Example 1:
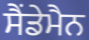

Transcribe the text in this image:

ਸੈਂਡੇਮੈਨ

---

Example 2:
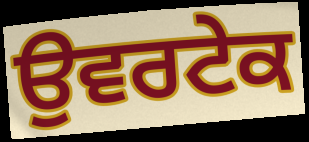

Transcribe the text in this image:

ਉਵਰਟੇਕ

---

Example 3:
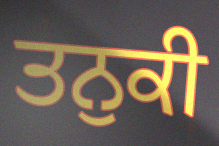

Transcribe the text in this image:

ਤਨੁਕੀ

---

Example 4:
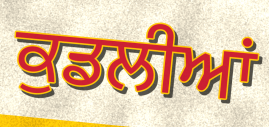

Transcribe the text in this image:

ਕੁਡਲੀਆਂ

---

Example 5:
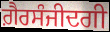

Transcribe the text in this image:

ਗ਼ੈਰਸੰਜੀਦਗੀ